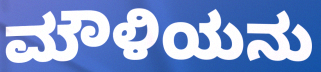
ಮೌಳಿಯನು